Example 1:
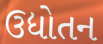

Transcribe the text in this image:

ઉદ્યોતન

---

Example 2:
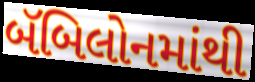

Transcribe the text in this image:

બૅબિલોનમાંથી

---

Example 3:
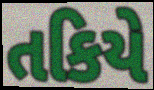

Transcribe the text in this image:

તકિયે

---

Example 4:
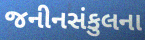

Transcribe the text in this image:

જનીનસંકુલના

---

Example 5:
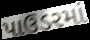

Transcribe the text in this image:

પાઉડરમાં